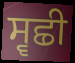
ਸ੍ਵਛੀ